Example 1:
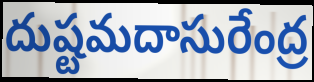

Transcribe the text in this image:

దుష్టమదాసురేంద్ర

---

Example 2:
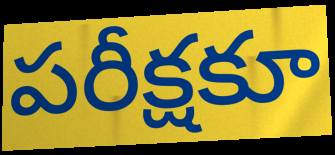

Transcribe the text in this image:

పరీక్షకూ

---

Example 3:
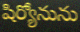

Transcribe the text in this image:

షిర్యోనును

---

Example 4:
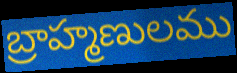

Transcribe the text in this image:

బ్రాహ్మణులము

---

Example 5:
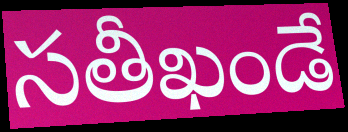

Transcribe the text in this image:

సతీఖండే